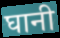
घानी